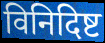
विनिदिष्ट